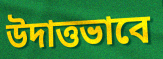
উদাত্তভাবে